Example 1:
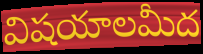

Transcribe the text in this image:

విషయాలమీద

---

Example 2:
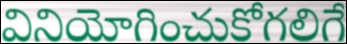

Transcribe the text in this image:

వినియోగించుకోగలిగే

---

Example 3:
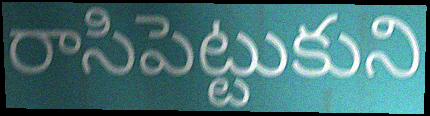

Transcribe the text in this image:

రాసిపెట్టుకుని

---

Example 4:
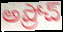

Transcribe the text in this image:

అప్రోచ్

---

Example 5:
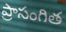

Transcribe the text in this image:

ప్రాసంగిత